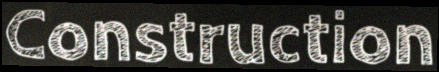
Construction